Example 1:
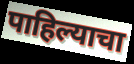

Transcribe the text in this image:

पाहिल्याचा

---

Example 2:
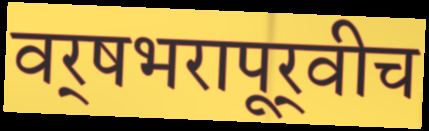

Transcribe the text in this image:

वर्षभरापूर्वीच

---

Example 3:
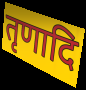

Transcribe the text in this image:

तृणादि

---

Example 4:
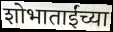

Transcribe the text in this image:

शोभाताईंच्या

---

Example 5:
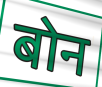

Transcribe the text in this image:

बोन